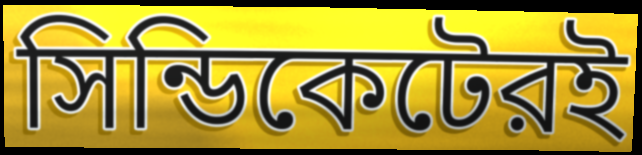
সিন্ডিকেটেরই